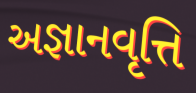
અજ્ઞાનવૃત્તિ